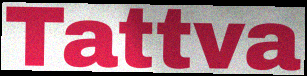
Tattva